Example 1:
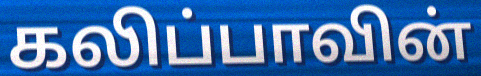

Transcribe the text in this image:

கலிப்பாவின்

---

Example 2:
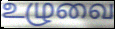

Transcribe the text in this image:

உழுவை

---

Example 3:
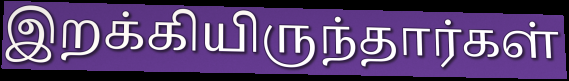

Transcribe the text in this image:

இறக்கியிருந்தார்கள்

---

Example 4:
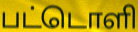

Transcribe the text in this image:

பட்டொளி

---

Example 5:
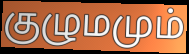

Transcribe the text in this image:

குழுமமும்